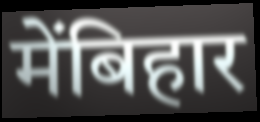
मेंबिहार